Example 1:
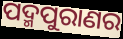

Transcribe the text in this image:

ପଦ୍ମପୁରାଣର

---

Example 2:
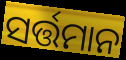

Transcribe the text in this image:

ସର୍ତ୍ତମାନ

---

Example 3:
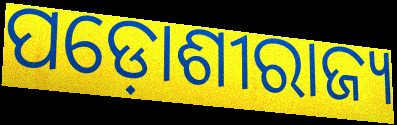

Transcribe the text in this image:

ପଡ଼ୋଶୀରାଜ୍ୟ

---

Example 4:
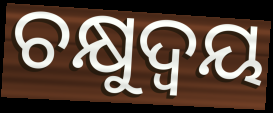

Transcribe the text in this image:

ଚକ୍ଷୁଦ୍ଵୟ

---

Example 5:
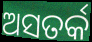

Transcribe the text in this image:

ଅସତର୍କ